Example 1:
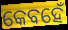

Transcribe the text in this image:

କେବହେଁ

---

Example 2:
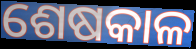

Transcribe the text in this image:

ଶେଷକାଳ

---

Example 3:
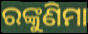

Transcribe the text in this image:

ରଙ୍କୁଣିମା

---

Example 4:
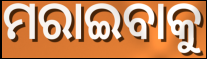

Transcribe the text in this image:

ମରାଇବାକୁ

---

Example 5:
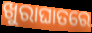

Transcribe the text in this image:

ଖୁରାଘାତରେ